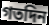
গতদিন